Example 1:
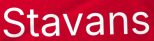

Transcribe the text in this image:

Stavans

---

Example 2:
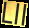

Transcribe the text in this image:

LII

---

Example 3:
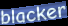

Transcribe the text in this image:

blacker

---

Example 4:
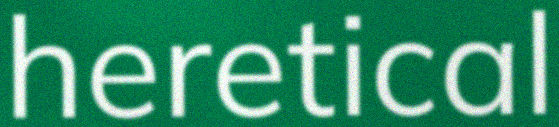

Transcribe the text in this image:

heretical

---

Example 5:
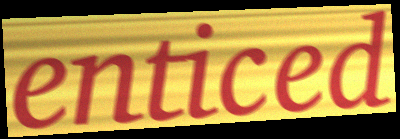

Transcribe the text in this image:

enticed